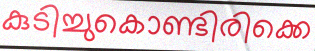
കുടിച്ചുകൊണ്ടിരിക്കെ